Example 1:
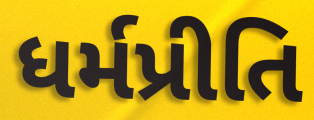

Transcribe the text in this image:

ધર્મપ્રીતિ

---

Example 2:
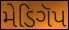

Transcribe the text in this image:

મેડિગૅપ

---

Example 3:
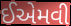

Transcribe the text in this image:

ઈએમવી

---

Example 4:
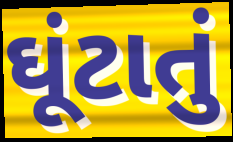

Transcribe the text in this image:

ઘૂંટાતું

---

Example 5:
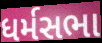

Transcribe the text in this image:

ધર્મસભા